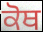
ਕੋਥ